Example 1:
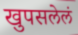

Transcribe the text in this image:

खुपसलेलं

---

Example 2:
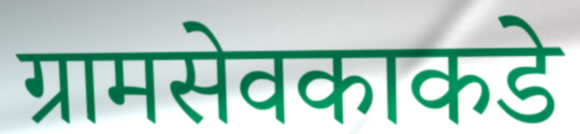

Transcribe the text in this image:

ग्रामसेवकाकडे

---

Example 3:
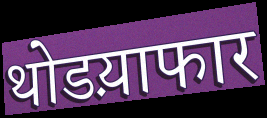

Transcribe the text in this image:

थोडय़ाफार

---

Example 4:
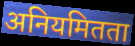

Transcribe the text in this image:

अनियमितता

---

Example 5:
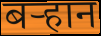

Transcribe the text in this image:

बऱ्हान